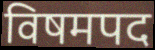
विषमपद